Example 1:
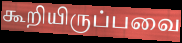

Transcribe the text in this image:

கூறியிருப்பவை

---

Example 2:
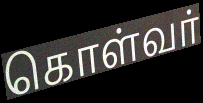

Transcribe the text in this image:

கொள்வர்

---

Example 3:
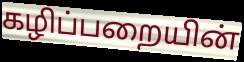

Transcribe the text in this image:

கழிப்பறையின்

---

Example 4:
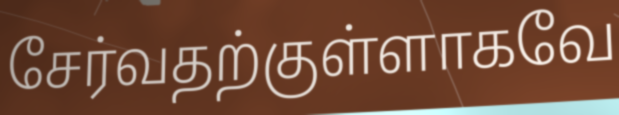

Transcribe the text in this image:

சேர்வதற்குள்ளாகவே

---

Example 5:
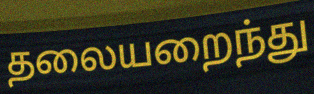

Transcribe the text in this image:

தலையறைந்து